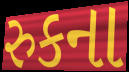
રુકના